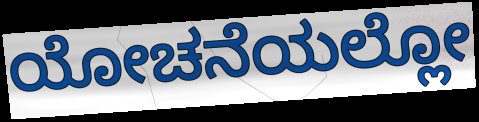
ಯೋಚನೆಯಲ್ಲೋ